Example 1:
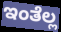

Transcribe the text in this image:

ಇಂತೆಲ್ಲ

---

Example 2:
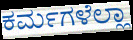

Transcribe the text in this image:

ಕರ್ಮಗಳೆಲ್ಲಾ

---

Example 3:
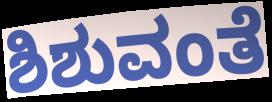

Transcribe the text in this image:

ಶಿಶುವಂತೆ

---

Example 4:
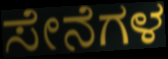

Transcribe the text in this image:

ಸೇನೆಗಳ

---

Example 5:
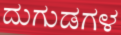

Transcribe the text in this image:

ದುಗುಡಗಳ